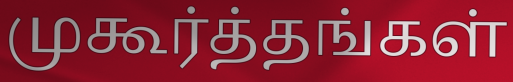
முகூர்த்தங்கள்